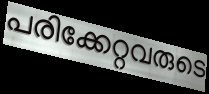
പരിക്കേറ്റവരുടെ